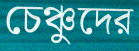
চেঞ্চুদের